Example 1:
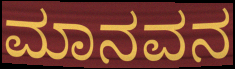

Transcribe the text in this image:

ಮಾನವನ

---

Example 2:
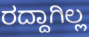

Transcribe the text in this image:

ರದ್ದಾಗಿಲ್ಲ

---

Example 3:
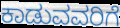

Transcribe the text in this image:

ಕಾಡುವವರಿಗೆ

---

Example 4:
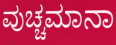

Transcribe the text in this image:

ವುಚ್ಚಮಾನಾ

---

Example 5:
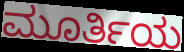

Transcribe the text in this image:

ಮೂರ್ತಿಯ